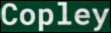
Copley